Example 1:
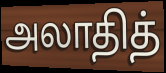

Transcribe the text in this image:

அலாதித்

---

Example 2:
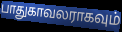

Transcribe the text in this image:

பாதுகாவலராகவும்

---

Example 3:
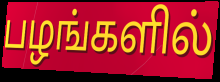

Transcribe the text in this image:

பழங்களில்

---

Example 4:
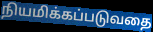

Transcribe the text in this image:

நியமிக்கப்படுவதை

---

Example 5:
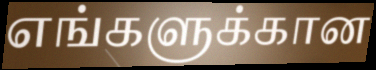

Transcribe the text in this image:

எங்களுக்கான